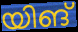
യിങ്